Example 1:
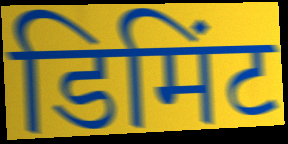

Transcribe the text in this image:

डिमिंट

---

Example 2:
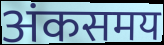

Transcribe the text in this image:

अंकसमय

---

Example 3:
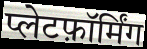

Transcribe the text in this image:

प्लेटफ़ॉर्मिंग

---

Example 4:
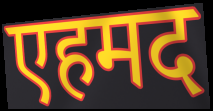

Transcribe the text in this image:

एहमद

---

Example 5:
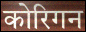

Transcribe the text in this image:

कोरिगन